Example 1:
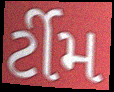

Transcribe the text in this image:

ર્ટીમ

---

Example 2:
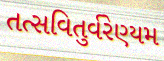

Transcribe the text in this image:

તત્સવિતુર્વરેણ્યમ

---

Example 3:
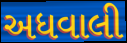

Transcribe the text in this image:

અધવાલી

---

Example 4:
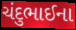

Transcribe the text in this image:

ચંદુભાઈના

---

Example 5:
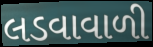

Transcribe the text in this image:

લડવાવાળી